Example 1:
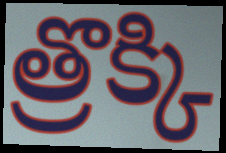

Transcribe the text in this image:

త్రొక్కి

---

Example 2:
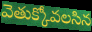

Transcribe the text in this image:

వెతుక్కోవలసిన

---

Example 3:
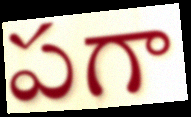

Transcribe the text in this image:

పగా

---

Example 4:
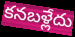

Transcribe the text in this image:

కనబళ్లేదు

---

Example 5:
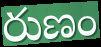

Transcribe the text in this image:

రుణం